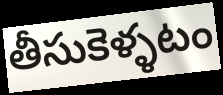
తీసుకెళ్ళటం